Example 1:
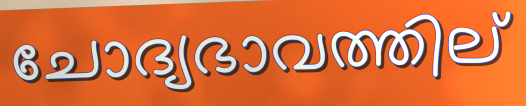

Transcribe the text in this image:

ചോദ്യഭാവത്തില്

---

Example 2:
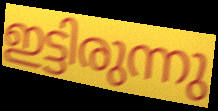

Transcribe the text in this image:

ഇട്ടിരുന്നു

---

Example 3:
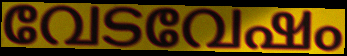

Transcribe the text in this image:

വേടവേഷം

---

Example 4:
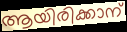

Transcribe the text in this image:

ആയിരിക്കാന്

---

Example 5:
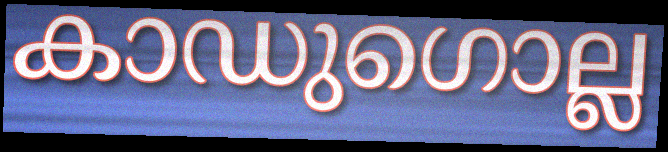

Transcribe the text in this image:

കാഡുഗൊല്ല